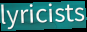
lyricists